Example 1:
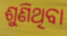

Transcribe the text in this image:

ଶୁଣିଥିବା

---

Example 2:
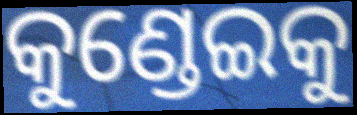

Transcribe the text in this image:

କୁଣ୍ଡେଇକୁ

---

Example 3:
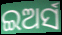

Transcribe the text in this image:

ଇଅର୍ସ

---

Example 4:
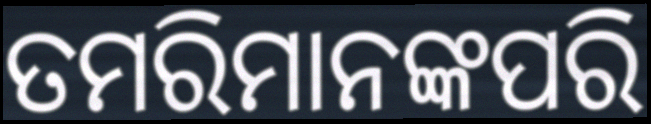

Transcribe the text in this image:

ତମରିମାନଙ୍କପରି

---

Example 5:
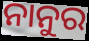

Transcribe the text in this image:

ନାନୁର